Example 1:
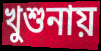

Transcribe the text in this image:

খুশুনায়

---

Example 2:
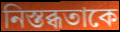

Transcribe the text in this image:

নিস্তব্ধতাকে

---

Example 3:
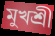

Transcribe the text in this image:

মুখশ্রী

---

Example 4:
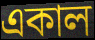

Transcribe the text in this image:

একাল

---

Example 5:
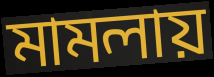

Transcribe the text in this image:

মামলায়